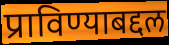
प्राविण्याबद्दल